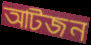
আটজন